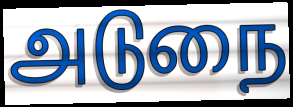
அடுநை